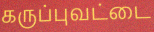
கருப்புவட்டை